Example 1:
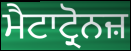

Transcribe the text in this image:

ਮੈਟਾਟ੍ਰੋਨਜ਼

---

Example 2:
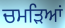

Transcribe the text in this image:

ਚਮੜਿਆਂ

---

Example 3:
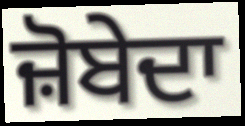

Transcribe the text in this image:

ਜ਼ੋਬੇਦਾ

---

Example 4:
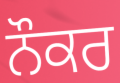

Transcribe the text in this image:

ਨੌਕਰ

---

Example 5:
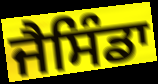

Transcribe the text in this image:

ਜੈਸਿੰਡਾ